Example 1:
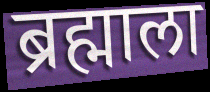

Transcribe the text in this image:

ब्रह्माला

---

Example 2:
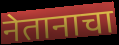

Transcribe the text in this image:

नेतानाचा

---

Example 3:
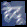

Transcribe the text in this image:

हेदू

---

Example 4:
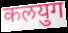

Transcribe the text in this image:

कलयुग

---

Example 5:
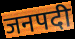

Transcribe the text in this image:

जनपदी